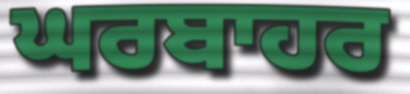
ਘਰਬਾਹਰ